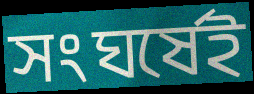
সংঘর্ষেই